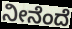
ನೀನೆಂದೆ